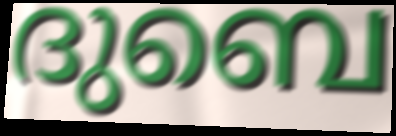
ദുബെ